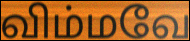
விம்மவே